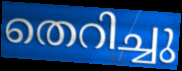
തെറിച്ചു